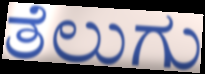
ತೆಲುಗು